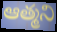
ఆత్మని